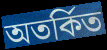
অতর্কিত